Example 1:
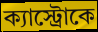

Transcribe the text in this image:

ক্যাস্ট্রোকে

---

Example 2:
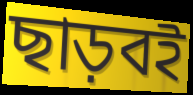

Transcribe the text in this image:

ছাড়বই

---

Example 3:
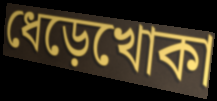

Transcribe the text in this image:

ধেড়েখোকা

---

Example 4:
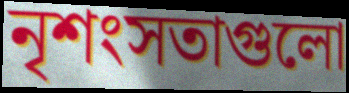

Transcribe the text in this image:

নৃশংসতাগুলো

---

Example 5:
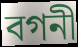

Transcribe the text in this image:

বগনী